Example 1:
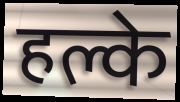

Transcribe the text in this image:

हल्‍के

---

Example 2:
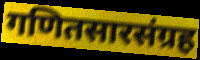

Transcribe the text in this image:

गणितसारसंग्रह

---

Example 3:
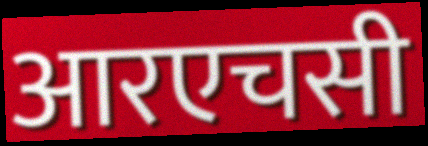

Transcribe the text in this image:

आरएचसी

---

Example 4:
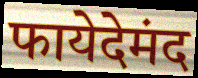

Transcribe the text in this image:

फायेदेमंद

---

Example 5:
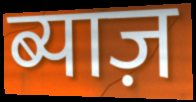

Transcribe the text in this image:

ब्याज़